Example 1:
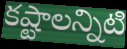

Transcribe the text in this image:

కష్టాలన్నిటి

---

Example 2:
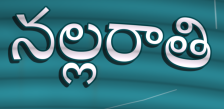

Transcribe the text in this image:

నల్లరాతి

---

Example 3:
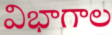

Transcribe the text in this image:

విభాగాల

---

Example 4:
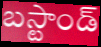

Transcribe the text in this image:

బస్టాండ్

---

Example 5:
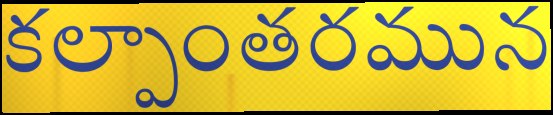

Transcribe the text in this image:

కల్పాంతరమున